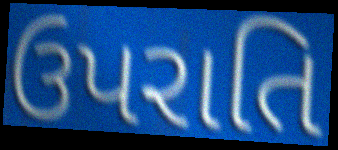
ઉપરાતિ